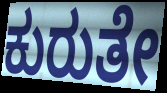
ಕುರುತೇ